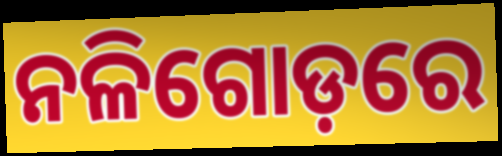
ନଳିଗୋଡ଼ରେ